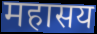
महासय